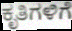
ಕೃತಿಗಳಿಗೆ